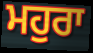
ਮਹੁਰਾ